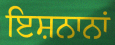
ਇਸ਼ਨਾਨਾਂ